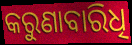
କରୁଣାବାରିଧି